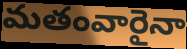
మతంవారైనా